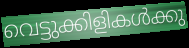
വെട്ടുക്കിളികൾക്കു